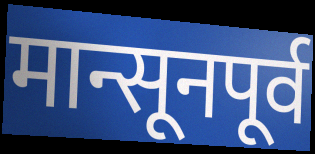
मान्सूनपूर्व